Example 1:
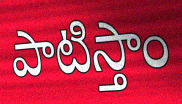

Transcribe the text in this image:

పాటిస్తాం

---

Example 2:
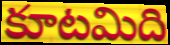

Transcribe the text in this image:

కూటమిది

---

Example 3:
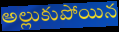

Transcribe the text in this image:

అల్లుకుపోయిన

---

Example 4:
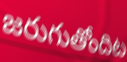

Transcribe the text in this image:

జరుగుతోందిట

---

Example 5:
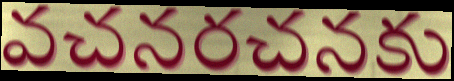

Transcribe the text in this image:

వచనరచనకు